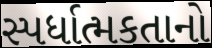
સ્પર્ધાત્મકતાનો